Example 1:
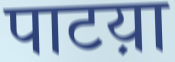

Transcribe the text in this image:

पाटय़ा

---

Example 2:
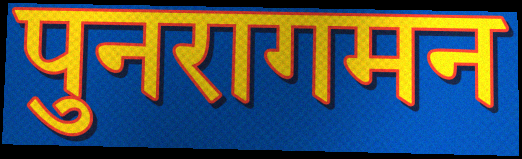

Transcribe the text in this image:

पुनरागमन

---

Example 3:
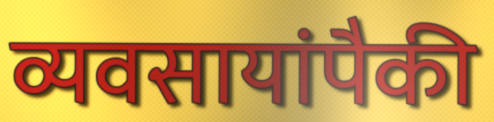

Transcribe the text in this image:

व्यवसायांपैकी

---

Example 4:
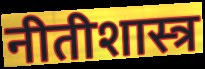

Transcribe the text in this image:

नीतीशास्त्र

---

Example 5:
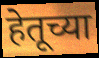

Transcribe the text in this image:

हेतूच्या